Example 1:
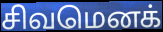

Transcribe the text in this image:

சிவமெனக்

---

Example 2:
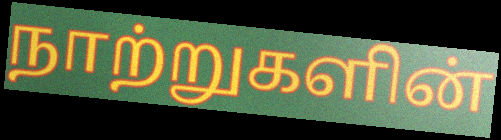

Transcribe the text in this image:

நாற்றுகளின்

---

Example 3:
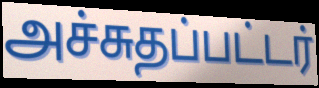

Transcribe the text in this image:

அச்சுதப்பட்டர்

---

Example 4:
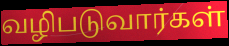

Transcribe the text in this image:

வழிபடுவார்கள்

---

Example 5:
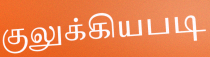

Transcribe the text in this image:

குலுக்கியபடி